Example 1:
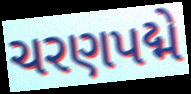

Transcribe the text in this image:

ચરણપદ્મે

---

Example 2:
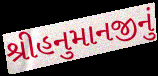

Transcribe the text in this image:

શ્રીહનુમાનજીનું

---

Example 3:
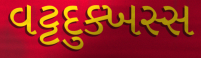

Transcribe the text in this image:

વટ્ટદુક્ખસ્સ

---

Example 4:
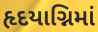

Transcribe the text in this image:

હૃદયાગ્નિમાં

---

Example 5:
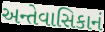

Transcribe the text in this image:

અન્તેવાસિકાનં